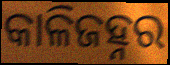
କାଳିଜହ୍ନର